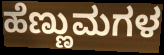
ಹೆಣ್ಣುಮಗಳ